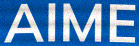
AIME